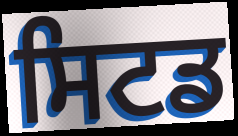
ਸਿਟਡ